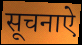
सूचनाऐ